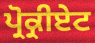
ਪ੍ਰੋਕ੍ਰੀਏਟ